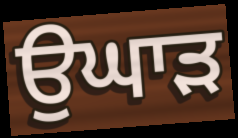
ਉਘਾੜ